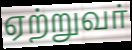
ஏற்றுவர்